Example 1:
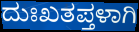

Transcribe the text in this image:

ದುಃಖತಪ್ತಳಾಗಿ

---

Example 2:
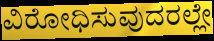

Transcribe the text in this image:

ವಿರೋಧಿಸುವುದರಲ್ಲೇ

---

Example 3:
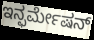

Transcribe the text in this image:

ಇನ್ಫರ್ಮೇಷನ್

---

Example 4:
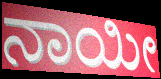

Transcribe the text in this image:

ನಾಯೀ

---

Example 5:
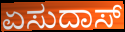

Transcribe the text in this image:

ಏಸುದಾಸ್